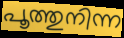
പൂത്തുനിന്ന